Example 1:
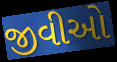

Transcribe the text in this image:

જીવીઓ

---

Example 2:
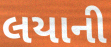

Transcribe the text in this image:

લયાની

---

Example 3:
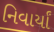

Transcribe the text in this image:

નિવાર્યાં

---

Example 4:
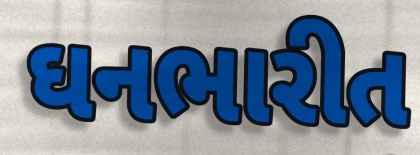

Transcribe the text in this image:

ઘનભારીત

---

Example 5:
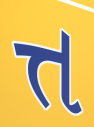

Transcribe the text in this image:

ત્ત